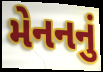
મેનનનું